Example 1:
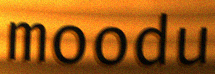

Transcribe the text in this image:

moodu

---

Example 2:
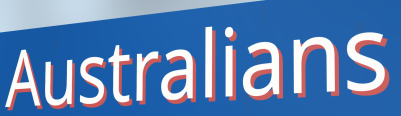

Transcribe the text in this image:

Australians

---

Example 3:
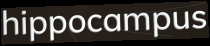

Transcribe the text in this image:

hippocampus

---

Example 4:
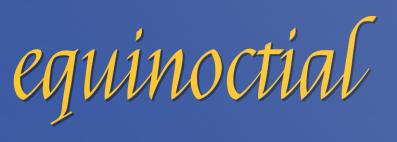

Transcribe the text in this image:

equinoctial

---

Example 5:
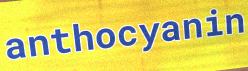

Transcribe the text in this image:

anthocyanin